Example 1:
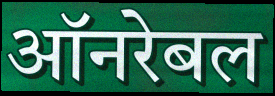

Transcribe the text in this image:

ऑनरेबल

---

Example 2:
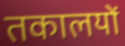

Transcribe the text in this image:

तकालयों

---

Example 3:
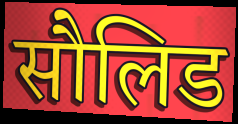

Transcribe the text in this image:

सौलिड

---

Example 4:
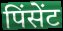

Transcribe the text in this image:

पिंसेंट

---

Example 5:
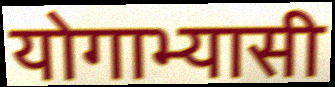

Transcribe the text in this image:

योगाभ्यासी